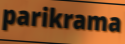
parikrama